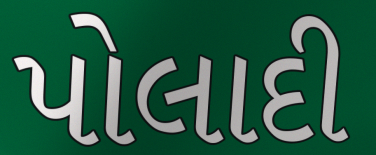
પોલાદી